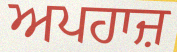
ਅਪਹਾਜ਼